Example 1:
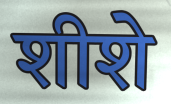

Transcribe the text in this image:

शीशे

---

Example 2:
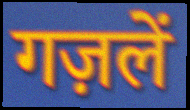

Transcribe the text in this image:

गज़लें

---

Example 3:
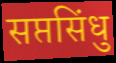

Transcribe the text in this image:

सप्तसिंधु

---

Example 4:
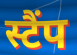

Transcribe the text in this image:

स्टैंप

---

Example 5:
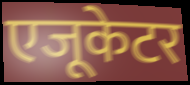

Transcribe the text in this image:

एजूकेटर